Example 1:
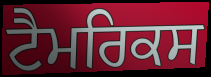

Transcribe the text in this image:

ਟੈਮਰਿਕਸ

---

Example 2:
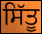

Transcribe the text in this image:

ਸਿੱਤੂ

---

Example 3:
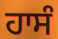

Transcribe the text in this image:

ਹਾਸੰ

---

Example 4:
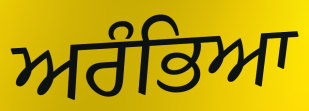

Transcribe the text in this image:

ਅਰੰਭਿਆ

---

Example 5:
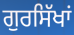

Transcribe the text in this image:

ਗੁਰਸਿੱਖਾਂ